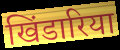
खिंडारिया